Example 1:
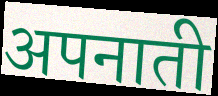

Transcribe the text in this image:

अपनाती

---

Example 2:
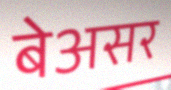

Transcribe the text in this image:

बेअसर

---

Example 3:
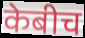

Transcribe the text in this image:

केबीच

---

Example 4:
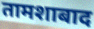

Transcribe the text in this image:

तामशाबाद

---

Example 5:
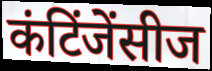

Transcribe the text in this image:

कंटिंजेंसीज